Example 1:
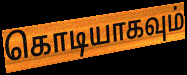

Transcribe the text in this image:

கொடியாகவும்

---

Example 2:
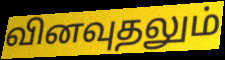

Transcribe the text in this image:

வினவுதலும்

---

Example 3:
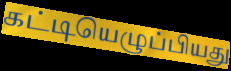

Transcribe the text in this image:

கட்டியெழுப்பியது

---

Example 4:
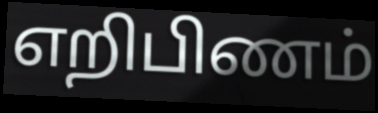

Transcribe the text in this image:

எறிபிணம்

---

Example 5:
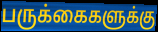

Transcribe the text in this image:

பருக்கைகளுக்கு